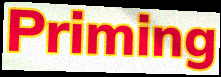
Priming